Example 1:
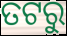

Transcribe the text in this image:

ତଟରୁ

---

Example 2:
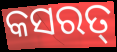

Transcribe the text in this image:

କସରତ୍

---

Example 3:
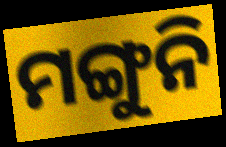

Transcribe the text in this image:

ମଙ୍ଗୁନି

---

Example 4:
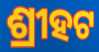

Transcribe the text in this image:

ଶ୍ରୀହଟ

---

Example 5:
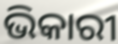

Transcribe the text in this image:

ଭିକାରୀ